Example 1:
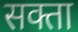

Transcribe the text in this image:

सक्ता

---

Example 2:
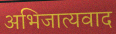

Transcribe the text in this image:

अभिजात्यवाद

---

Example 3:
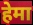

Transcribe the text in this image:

हेमा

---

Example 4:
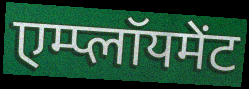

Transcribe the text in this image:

एम्प्लॉयमेंट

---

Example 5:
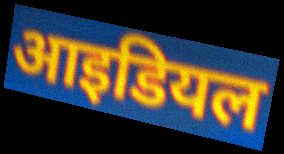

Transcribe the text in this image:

आइडियल